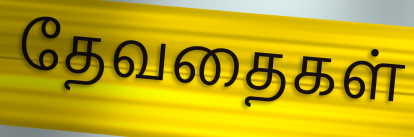
தேவதைகள்